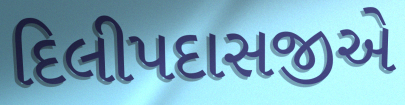
દિલીપદાસજીએ